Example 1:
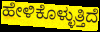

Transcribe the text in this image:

ಹೇಳಿಕೊಳ್ಳುತ್ತಿದೆ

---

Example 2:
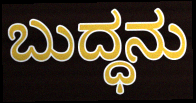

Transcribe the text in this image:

ಬುದ್ಧನು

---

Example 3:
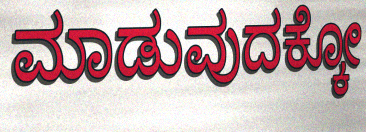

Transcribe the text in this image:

ಮಾಡುವುದಕ್ಕೋ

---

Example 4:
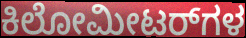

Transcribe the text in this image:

ಕಿಲೋಮೀಟರ್‌ಗಳ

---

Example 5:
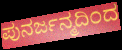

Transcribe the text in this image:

ಪುನರ್ಜನ್ಮದಿಂದ